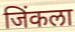
जिंकला